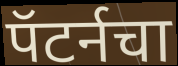
पॅटर्नचा